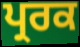
ਪ੍ਰਰਕ